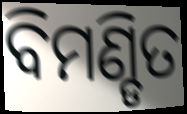
ବିମଣ୍ଡିତ